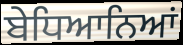
ਬੇਧਿਆਨਿਆਂ